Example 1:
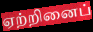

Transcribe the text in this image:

ஏற்றினைப்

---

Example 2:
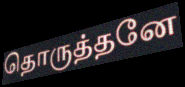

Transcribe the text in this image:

தொருத்தனே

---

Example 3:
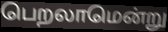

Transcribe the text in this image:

பெறலாமென்று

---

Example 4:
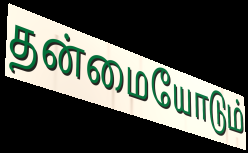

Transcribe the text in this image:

தன்மையோடும்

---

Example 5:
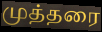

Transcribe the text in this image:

முத்தரை